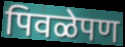
पिवळेपण